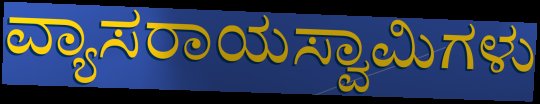
ವ್ಯಾಸರಾಯಸ್ವಾಮಿಗಳು